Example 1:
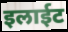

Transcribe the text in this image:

इलाईट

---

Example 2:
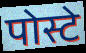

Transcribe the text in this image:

पोस्टे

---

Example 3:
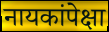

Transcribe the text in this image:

नायकांपेक्षा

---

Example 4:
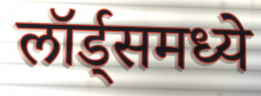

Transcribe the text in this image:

लॉर्ड्समध्ये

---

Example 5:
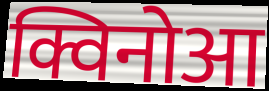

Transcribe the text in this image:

क्विनोआ